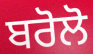
ਬਰੋਲੋ